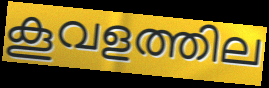
കൂവളത്തില